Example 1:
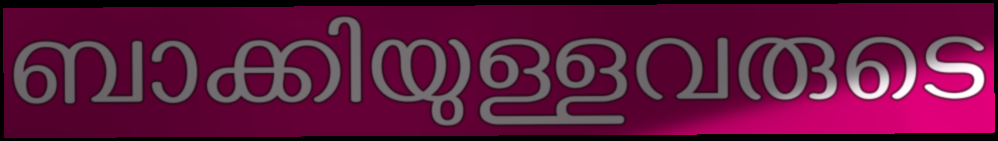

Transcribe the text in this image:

ബാക്കിയുള്ളവരുടെ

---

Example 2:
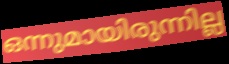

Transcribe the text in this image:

ഒന്നുമായിരുന്നില്ല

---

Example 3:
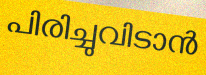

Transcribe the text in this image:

പിരിച്ചുവിടാൻ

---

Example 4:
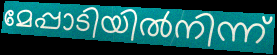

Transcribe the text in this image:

മേപ്പാടിയിൽനിന്ന്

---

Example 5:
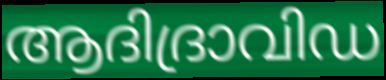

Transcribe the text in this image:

ആദിദ്രാവിഡ